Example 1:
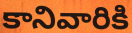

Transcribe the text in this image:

కానివారికి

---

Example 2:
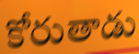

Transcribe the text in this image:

కోరుతాడు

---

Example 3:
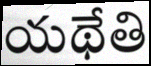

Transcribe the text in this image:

యథేతి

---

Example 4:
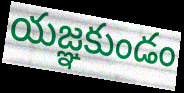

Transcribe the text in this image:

యజ్ఞకుండం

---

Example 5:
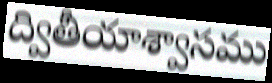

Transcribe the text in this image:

ద్వితీయాశ్వాసము